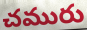
చమురు